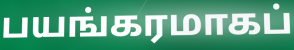
பயங்கரமாகப்